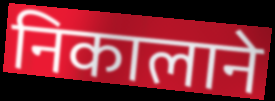
निकालाने